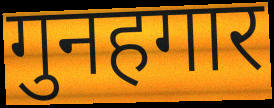
गुनहगार